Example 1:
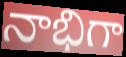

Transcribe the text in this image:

నాభిగా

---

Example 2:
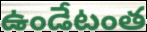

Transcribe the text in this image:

ఉండేటంత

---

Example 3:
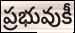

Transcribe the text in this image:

ప్రభువుకీ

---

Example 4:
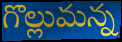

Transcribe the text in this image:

గొల్లుమన్న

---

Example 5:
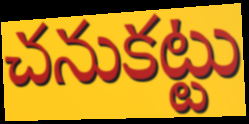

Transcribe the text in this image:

చనుకట్టు